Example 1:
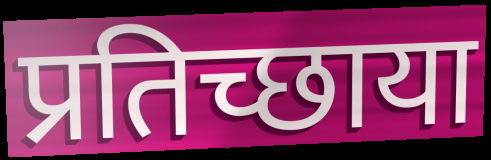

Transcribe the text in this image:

प्रतिच्छाया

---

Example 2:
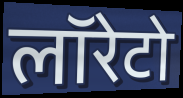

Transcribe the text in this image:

लॉरेटो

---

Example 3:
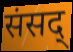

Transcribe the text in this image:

संसद्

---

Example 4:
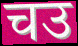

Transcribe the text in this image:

चउ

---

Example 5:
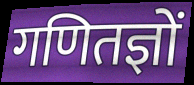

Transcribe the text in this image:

गणितज्ञों